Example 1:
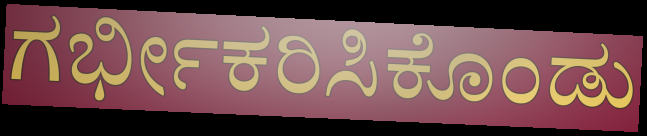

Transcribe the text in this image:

ಗರ್ಭೀಕರಿಸಿಕೊಂಡು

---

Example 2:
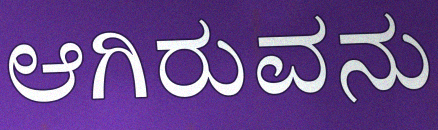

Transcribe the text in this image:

ಆಗಿರುವನು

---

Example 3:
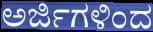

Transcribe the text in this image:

ಅರ್ಜಿಗಳಿಂದ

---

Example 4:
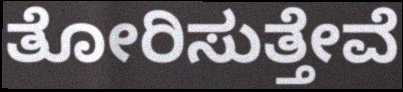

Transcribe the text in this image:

ತೋರಿಸುತ್ತೇವೆ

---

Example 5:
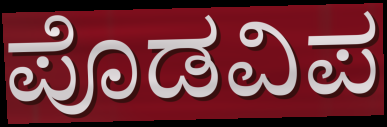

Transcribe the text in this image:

ಪೊಡವಿಪ